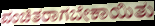
ವಂಚಿತರಾಗಬೇಕಾಯಿತು